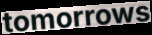
tomorrows